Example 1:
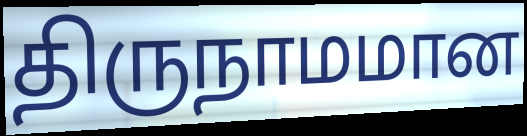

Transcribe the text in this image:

திருநாமமான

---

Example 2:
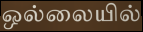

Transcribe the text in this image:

ஒல்லையில்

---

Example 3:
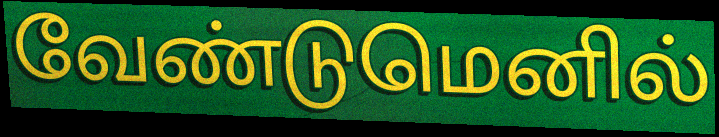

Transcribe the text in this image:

வேண்டுமெனில்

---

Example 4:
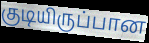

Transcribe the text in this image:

குடியிருப்பான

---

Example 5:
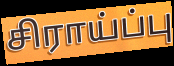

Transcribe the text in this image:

சிராய்ப்பு